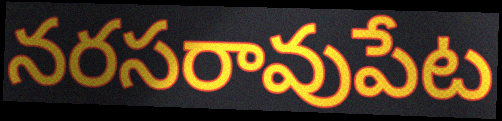
నరసరావుపేట